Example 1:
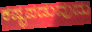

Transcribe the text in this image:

ಕಷ್ಟಪಡುವುದು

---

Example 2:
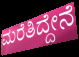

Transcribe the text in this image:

ಮರೆತಿದ್ದೇನೆ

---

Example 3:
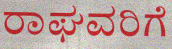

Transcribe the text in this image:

ರಾಘವರಿಗೆ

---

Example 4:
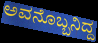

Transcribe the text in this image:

ಅವನೊಬ್ಬನಿದ್ದ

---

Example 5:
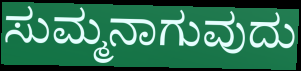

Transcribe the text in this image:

ಸುಮ್ಮನಾಗುವುದು